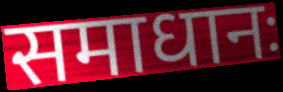
समाधानः